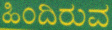
ಹಿಂದಿರುವ